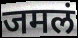
जमलं